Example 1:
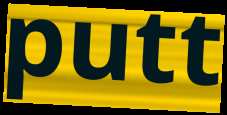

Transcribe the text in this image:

putt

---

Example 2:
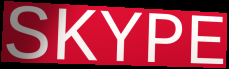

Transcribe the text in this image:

SKYPE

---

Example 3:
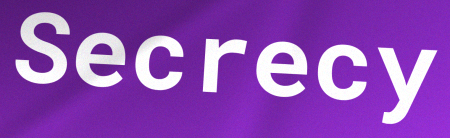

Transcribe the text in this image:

Secrecy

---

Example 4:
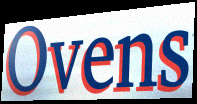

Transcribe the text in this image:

Ovens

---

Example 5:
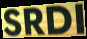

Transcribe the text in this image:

SRDI